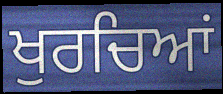
ਖੁਰਚਿਆਂ